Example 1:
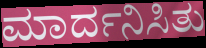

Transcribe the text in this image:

ಮಾರ್ದನಿಸಿತು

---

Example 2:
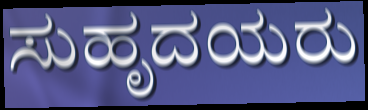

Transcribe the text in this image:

ಸುಹೃದಯರು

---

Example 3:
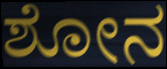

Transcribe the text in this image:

ಶೋನ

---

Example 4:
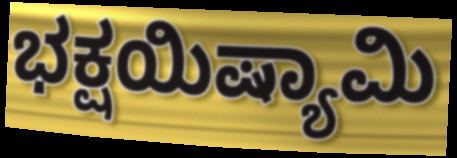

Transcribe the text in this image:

ಭಕ್ಷಯಿಷ್ಯಾಮಿ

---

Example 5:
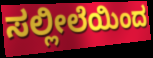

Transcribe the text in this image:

ಸಲ್ಲೀಲೆಯಿಂದ